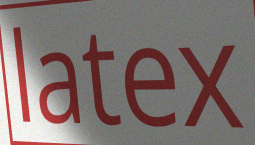
latex